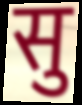
सु